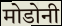
मोडोनी